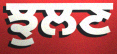
ਝੁਲਣ